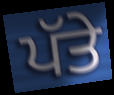
ਪੱਤੇ